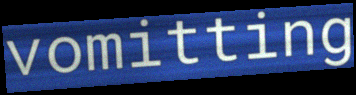
vomitting